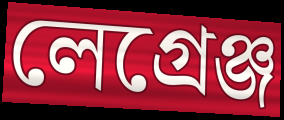
লেগ্রেঞ্জ